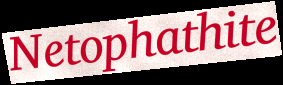
Netophathite